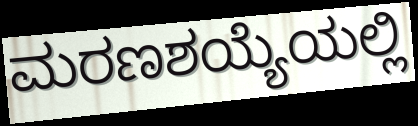
ಮರಣಶಯ್ಯೆಯಲ್ಲಿ